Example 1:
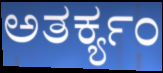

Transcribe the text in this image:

ಅತರ್ಕ್ಯಂ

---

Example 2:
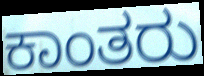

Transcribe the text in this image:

ಕಾಂತರು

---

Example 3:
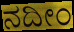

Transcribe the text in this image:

ನದೀಂ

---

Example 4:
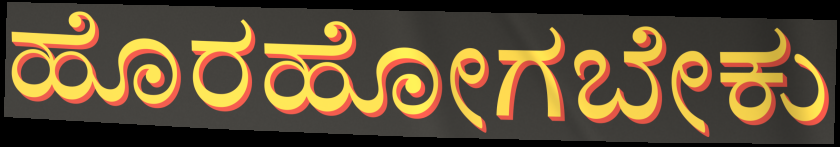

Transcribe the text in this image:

ಹೊರಹೋಗಬೇಕು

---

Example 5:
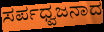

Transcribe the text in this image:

ಸರ್ಪಧ್ವಜನಾದ